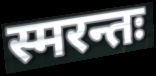
स्मरन्तः